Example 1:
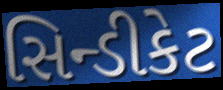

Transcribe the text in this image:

સિન્ડીકેટ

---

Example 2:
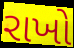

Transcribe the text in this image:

રાખો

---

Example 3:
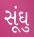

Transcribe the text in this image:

સૂંઘુ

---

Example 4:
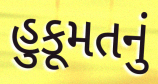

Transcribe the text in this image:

હુકૂમતનું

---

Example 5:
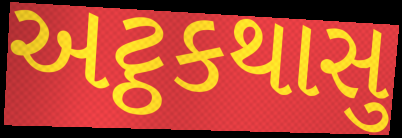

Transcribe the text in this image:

અટ્ઠકથાસુ